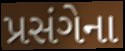
પ્રસંગેના